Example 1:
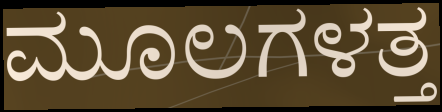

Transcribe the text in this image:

ಮೂಲಗಳತ್ತ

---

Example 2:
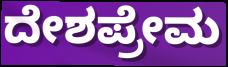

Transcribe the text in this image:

ದೇಶಪ್ರೇಮ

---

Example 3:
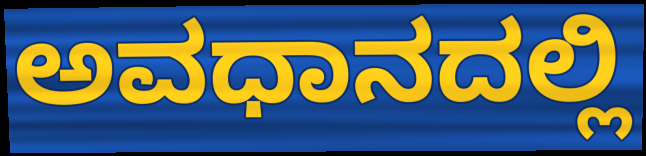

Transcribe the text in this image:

ಅವಧಾನದಲ್ಲಿ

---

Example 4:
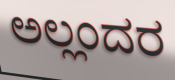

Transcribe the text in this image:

ಅಲ್ಲಂದರ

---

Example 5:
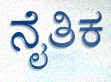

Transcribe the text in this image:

ನೈತಿಕ